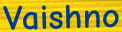
Vaishno